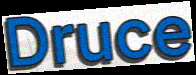
Druce